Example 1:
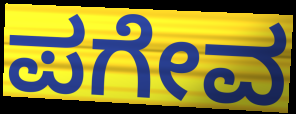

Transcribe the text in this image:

ಪಗೇವ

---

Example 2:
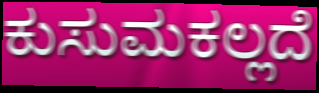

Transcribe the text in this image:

ಕುಸುಮಕಲ್ಲದೆ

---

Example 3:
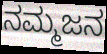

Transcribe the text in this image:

ನಮ್ಮಜನ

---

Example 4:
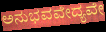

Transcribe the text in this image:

ಅನುಭವವೇದ್ಯವೇ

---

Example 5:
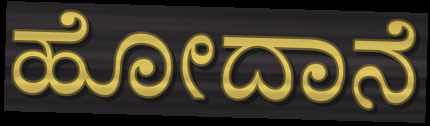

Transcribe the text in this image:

ಹೋದಾನೆ